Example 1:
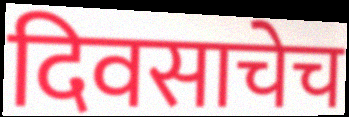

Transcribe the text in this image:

दिवसाचेच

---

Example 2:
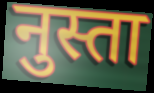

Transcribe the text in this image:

नुस्ता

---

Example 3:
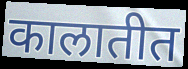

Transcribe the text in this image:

कालातीत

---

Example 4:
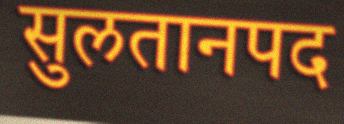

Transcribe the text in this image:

सुलतानपद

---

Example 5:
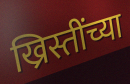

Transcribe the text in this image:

ख्रिस्तींच्या